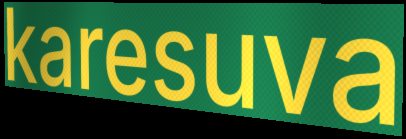
karesuva